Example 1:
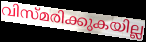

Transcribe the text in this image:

വിസ്മരിക്കുകയില്ല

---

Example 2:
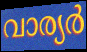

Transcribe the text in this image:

വാര്യർ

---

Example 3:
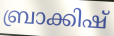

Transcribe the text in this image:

ബ്രാക്കിഷ്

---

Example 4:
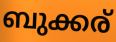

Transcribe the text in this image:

ബുക്കര്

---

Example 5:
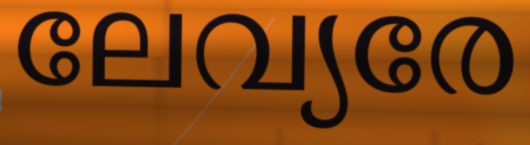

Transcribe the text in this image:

ലേവ്യരേ